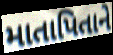
માતાપિતાને